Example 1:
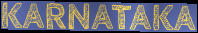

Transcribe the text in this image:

KARNATAKA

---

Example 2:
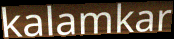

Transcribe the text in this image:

kalamkar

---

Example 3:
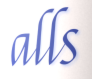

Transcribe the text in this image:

alls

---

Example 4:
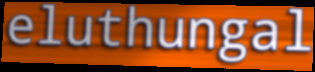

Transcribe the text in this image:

eluthungal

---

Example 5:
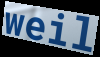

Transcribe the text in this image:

weil